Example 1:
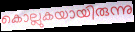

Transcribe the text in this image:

കൊല്ലുകയായിരുന്നു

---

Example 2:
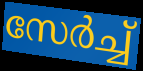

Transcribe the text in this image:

സേർച്ച്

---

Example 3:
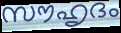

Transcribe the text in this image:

സൗഹൃദം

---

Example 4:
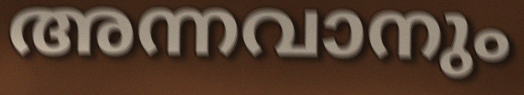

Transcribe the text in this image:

അന്നവാനും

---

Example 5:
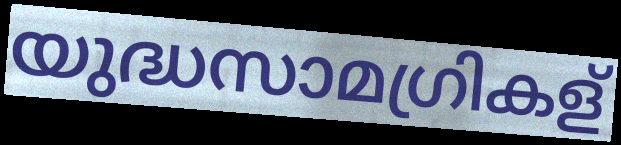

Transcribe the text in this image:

യുദ്ധസാമഗ്രികള്